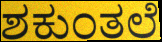
ಶಕುಂತಲೆ